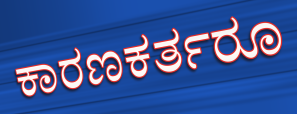
ಕಾರಣಕರ್ತರೂ